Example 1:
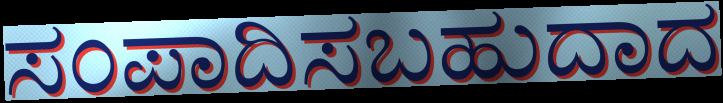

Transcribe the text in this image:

ಸಂಪಾದಿಸಬಹುದಾದ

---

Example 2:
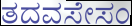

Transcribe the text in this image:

ತದವಸೇಸಂ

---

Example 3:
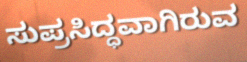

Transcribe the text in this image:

ಸುಪ್ರಸಿದ್ಧವಾಗಿರುವ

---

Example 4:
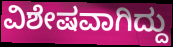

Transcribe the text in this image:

ವಿಶೇಷವಾಗಿದ್ದು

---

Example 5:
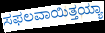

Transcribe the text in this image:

ಸಫಲವಾಯಿತ್ತಯ್ಯಾ